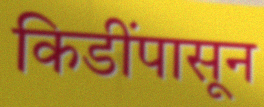
किडींपासून